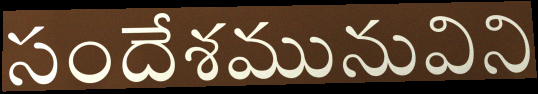
సందేశమునువిని